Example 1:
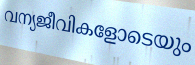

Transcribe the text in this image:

വന്യജീവികളോടെയും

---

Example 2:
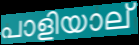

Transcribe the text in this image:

പാളിയാല്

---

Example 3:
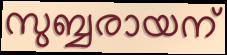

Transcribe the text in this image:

സുബ്ബരായന്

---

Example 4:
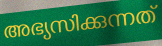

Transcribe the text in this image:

അഭ്യസിക്കുന്നത്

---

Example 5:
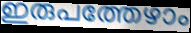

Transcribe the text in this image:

ഇരുപത്തേഴാം